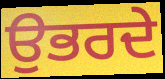
ਉਭਰਦੇ